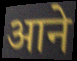
आने